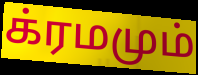
க்ரமமும்